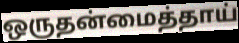
ஒருதன்மைத்தாய்